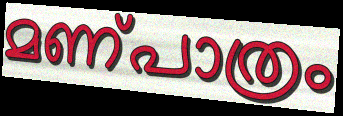
മണ്പാത്രം